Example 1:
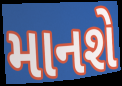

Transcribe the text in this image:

માનશે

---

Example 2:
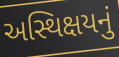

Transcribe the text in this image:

અસ્થિક્ષયનું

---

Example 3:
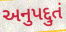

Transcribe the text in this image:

અનુપદ્દુતં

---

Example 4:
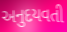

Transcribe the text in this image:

અનુદયવતી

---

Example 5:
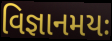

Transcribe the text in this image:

વિજ્ઞાનમયઃ